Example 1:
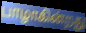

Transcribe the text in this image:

பாழாகின்றது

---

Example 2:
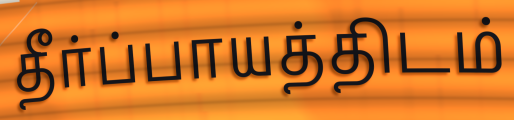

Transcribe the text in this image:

தீர்ப்பாயத்திடம்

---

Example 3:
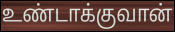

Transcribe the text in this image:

உண்டாக்குவான்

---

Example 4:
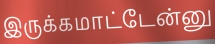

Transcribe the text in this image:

இருக்கமாட்டேன்னு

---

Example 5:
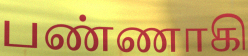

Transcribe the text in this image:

பண்ணாகி